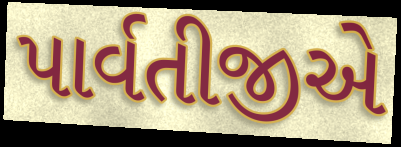
પાર્વતીજીએ